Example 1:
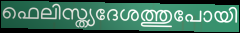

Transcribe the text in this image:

ഫെലിസ്ത്യദേശത്തുപോയി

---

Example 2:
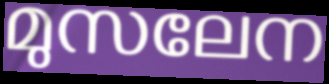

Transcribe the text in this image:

മുസലേന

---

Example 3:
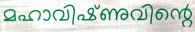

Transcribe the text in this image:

മഹാവിഷ്‌ണുവിന്റെ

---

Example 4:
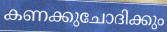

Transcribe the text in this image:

കണക്കുചോദിക്കും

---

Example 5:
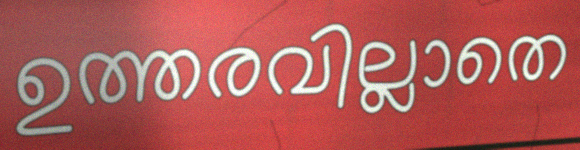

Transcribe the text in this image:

ഉത്തരവില്ലാതെ